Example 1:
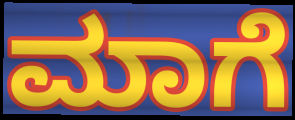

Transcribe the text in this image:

ಮಾಗೆ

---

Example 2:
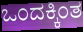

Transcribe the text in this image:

ಒಂದಕ್ಕಿಂತ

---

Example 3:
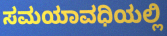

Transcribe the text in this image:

ಸಮಯಾವಧಿಯಲ್ಲಿ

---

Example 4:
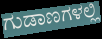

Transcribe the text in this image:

ಗುಡಾಣಗಳಲ್ಲಿ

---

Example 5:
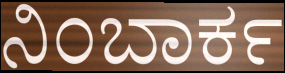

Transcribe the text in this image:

ನಿಂಬಾರ್ಕ